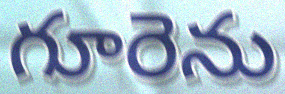
గూరెను